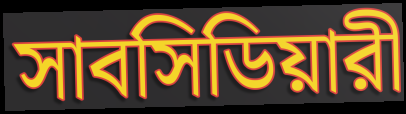
সাবসিডিয়ারী